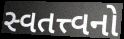
સ્વતત્ત્વનો